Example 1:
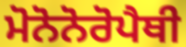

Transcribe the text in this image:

ਮੋਨੋਨੋਰੋਪੈਥੀ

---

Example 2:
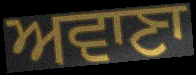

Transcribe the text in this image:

ਅਵਾਣਾ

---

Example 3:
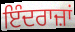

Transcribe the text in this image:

ਇੰਦਰਾਜ਼ਾਂ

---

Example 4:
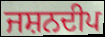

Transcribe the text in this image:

ਜਸ਼ਨਦੀਪ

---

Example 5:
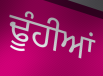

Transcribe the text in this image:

ਢੂੰਹੀਆਂ